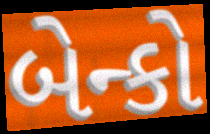
બેન્કો